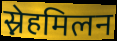
स्नेहमिलन